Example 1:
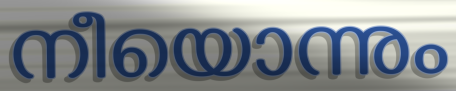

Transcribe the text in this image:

നീയൊന്നും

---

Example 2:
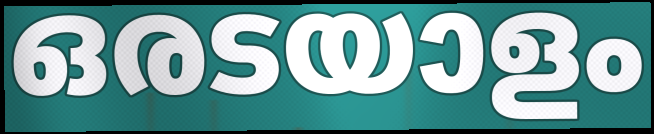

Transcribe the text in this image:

ഒരടയാളം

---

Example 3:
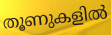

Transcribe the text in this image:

തൂണുകളിൽ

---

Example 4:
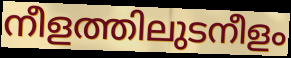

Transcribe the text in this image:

നീളത്തിലുടനീളം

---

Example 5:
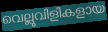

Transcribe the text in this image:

വെല്ലുവിളികളായ